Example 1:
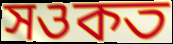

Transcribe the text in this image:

সওকত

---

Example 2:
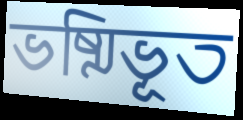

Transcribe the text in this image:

ভষ্মিভূত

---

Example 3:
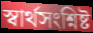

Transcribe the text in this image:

স্বার্থসংশ্নিষ্ট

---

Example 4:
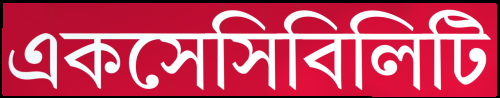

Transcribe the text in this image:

একসেসিবিলিটি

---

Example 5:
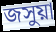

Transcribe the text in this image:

জসুয়া